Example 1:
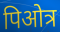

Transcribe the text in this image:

पिओत्र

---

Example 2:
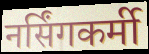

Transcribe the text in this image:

नर्सिंगकर्मी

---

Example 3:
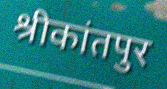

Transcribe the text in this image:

श्रीकांतपुर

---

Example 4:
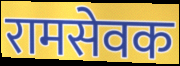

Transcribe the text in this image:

रामसेवक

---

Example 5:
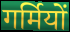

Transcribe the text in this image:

गर्मियों